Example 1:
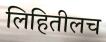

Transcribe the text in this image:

लिहितीलच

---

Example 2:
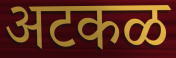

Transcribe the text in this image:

अटकळ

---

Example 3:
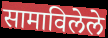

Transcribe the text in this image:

सामाविलेले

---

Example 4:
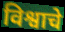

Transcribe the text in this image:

विश्वाचे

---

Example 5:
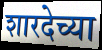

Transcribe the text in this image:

शारदेच्या